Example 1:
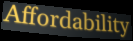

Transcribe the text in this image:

Affordability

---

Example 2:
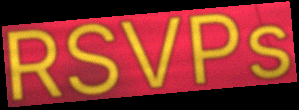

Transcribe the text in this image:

RSVPs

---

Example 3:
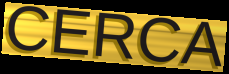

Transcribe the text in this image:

CERCA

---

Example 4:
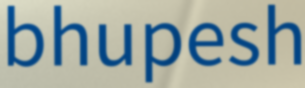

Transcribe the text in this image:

bhupesh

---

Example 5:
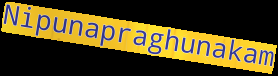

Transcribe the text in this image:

Nipunapraghunakam